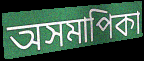
অসমাপিকা